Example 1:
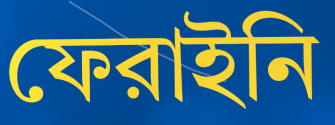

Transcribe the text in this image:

ফেরাইনি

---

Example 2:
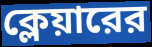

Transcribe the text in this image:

ক্লেয়ারের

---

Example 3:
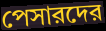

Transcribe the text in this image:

পেসারদের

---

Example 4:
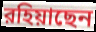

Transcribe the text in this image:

রহিয়াছেন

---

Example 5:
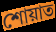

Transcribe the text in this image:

শোয়াত